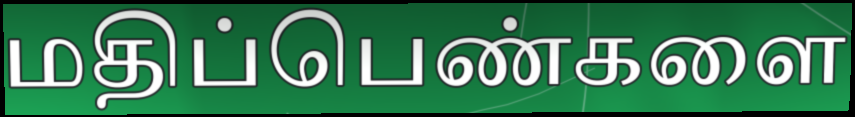
மதிப்பெண்களை